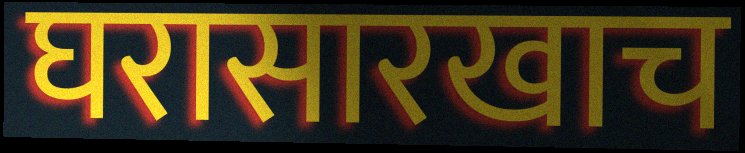
घरासारखाच